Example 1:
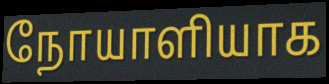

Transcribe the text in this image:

நோயாளியாக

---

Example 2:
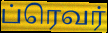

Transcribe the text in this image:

ப்ரெவர்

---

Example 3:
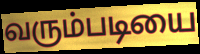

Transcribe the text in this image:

வரும்படியை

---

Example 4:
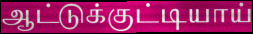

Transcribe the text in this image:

ஆட்டுக்குட்டியாய்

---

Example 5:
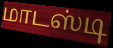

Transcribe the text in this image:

மாடஸ்டி